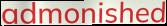
admonished